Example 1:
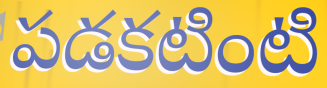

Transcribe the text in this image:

పడకటింటి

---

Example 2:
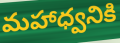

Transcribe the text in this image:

మహాధ్వనికి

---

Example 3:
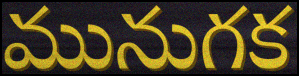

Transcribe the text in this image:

మునుగక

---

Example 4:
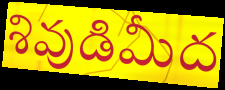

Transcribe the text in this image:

శివుడిమీద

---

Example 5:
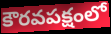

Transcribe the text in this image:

కౌరవపక్షంలో